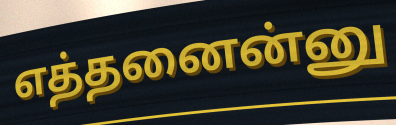
எத்தனைன்னு